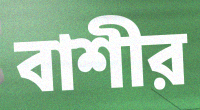
বাশীর